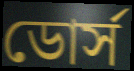
ডোর্স